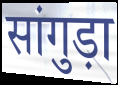
सांगुड़ा